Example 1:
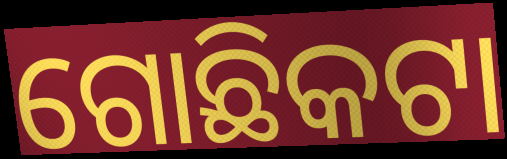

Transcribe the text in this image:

ଗୋଛିକଟା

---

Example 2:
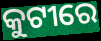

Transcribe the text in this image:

କୁଟୀରେ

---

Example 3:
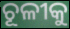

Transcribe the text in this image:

ଚୂଳୀକୁ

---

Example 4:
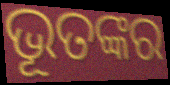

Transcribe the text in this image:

ଭୂତଙ୍କର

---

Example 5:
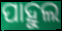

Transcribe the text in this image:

ପାହୁଲ